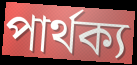
পাৰ্থক্য